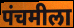
पंचमीला